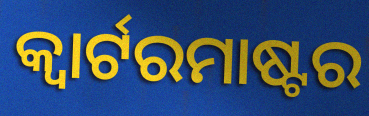
କ୍ୱାର୍ଟରମାଷ୍ଟର